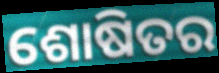
ଶୋଷିତର